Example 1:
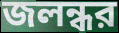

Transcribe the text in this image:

জলন্ধর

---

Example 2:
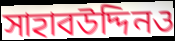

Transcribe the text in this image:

সাহাবউদ্দিনও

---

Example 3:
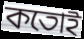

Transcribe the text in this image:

কতোই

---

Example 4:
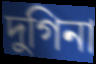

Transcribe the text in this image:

দুগিনা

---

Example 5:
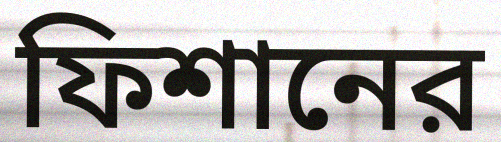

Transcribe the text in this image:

ফিশানের